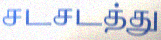
சடசடத்து